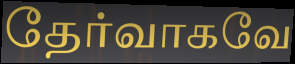
தேர்வாகவே